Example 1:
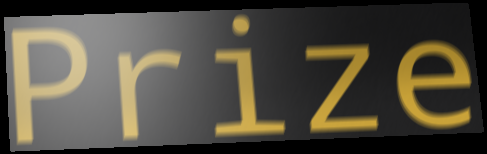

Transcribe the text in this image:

Prize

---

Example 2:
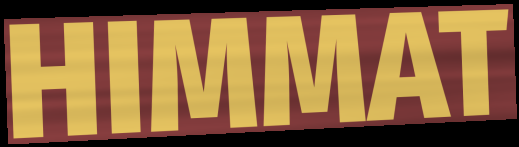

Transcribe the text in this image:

HIMMAT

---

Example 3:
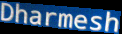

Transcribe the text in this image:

Dharmesh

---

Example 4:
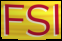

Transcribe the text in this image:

FSI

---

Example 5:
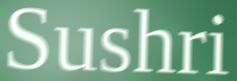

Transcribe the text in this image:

Sushri